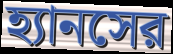
হ্যানসের